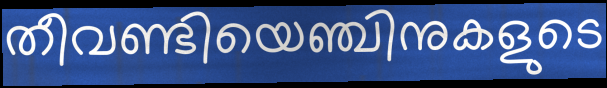
തീവണ്ടിയെഞ്ചിനുകളുടെ